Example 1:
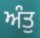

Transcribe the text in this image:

ਅੰਤੁ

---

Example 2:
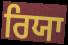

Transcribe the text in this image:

ਰਿਯਾ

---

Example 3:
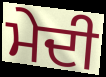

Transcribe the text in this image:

ਮੇਦੀ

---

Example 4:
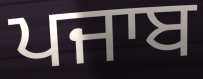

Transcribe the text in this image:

ਪਜਾਬ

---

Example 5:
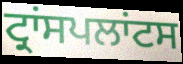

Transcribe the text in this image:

ਟ੍ਰਾਂਸਪਲਾਂਟਸ